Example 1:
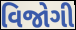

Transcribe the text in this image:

વિજોગી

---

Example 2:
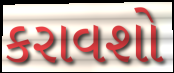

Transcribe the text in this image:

કરાવશો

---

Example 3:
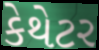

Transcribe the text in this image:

કેથેટર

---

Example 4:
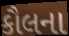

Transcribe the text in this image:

કૌલના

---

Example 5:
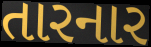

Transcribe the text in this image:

તારનાર